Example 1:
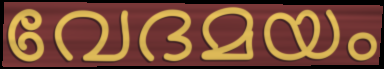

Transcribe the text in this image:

വേദമയം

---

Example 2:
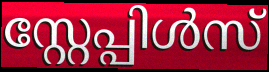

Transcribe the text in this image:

സ്റ്റേപ്പിൾസ്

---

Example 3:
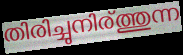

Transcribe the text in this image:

തിരിച്ചുനിര്ത്തുന്ന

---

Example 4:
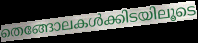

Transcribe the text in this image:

തെങ്ങോലകൾക്കിടയിലൂടെ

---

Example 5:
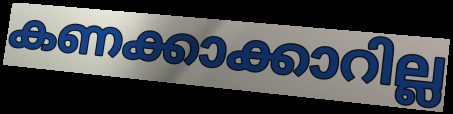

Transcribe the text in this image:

കണക്കാക്കാറില്ല